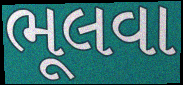
ભૂલવા